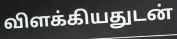
விளக்கியதுடன்